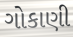
ગોકાણી